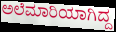
ಅಲೆಮಾರಿಯಾಗಿದ್ದ